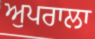
ਅੁਪਰਾਲਾ